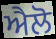
ਐਲੋ